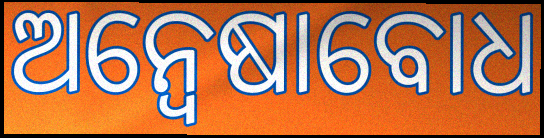
ଅନ୍ୱେଷାବୋଧ